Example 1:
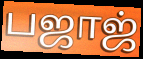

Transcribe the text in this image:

பஜாஜ்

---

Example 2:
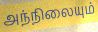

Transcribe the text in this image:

அந்நிலையும்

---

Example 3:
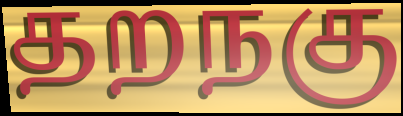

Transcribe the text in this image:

தறநகு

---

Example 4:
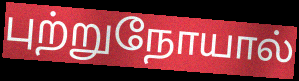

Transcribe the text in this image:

புற்றுநோயால்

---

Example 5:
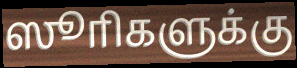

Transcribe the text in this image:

ஸூரிகளுக்கு